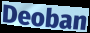
Deoban